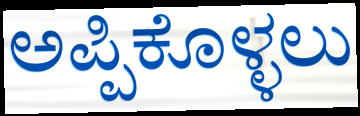
ಅಪ್ಪಿಕೊಳ್ಳಲು